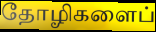
தோழிகளைப்